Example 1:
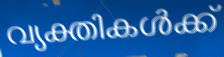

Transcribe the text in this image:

വ്യക്തികൾക്ക്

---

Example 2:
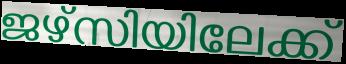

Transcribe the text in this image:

ജഴ്സിയിലേക്ക്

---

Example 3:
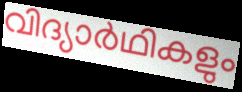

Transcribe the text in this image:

വിദ്യാർഥികളും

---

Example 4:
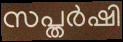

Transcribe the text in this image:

സപ്തർഷി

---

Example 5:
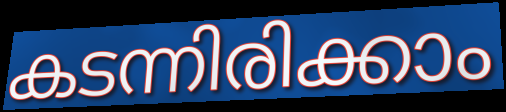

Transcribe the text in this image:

കടന്നിരിക്കാം